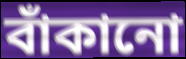
বাঁকানো